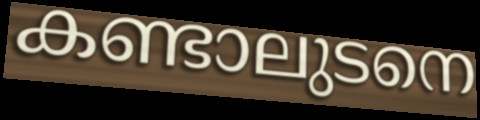
കണ്ടാലുടനെ